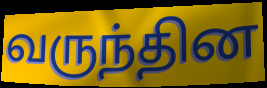
வருந்தின